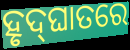
ହୃଦ୍‌ଘାତରେ